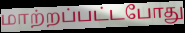
மாற்றப்பட்டபோது